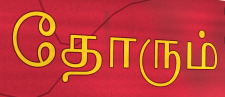
தோரும்